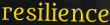
resilience